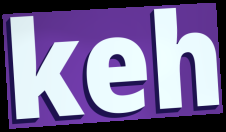
keh